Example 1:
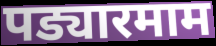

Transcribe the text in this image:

पड्यारमाम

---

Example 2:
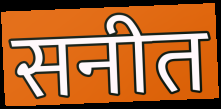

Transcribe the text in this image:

सनीत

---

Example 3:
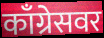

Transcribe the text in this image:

काँग्रेसवर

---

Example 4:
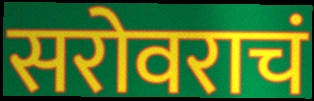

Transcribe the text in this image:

सरोवराचं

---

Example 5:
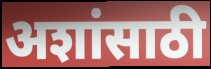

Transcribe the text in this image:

अशांसाठी